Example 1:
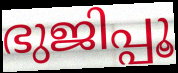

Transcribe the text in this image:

ഭുജിപ്പൂ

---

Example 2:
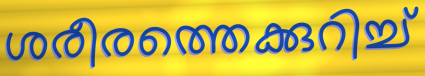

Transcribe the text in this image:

ശരീരത്തെക്കുറിച്ച്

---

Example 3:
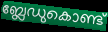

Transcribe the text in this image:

ബ്ലേഡുകൊണ്ട്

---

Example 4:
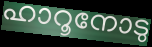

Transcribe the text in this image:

ഹാറൂനോടു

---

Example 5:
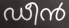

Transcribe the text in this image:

ഡീൻ